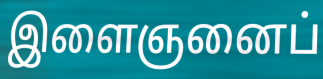
இளைஞனைப்